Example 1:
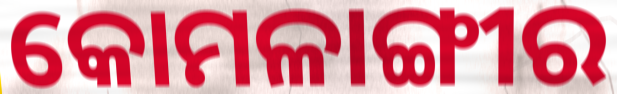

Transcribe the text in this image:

କୋମଳାଙ୍ଗୀର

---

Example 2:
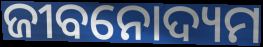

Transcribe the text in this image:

ଜୀବନୋଦ୍ୟମ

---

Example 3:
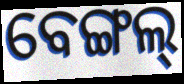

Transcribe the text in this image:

ବେଙ୍ଗଲ୍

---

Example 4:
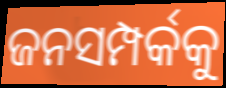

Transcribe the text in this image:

ଜନସମ୍ପର୍କକୁ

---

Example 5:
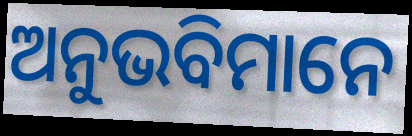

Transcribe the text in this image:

ଅନୁଭବିମାନେ